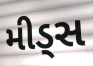
મીડ્સ